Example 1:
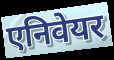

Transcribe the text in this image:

एनिवेयर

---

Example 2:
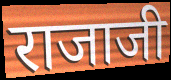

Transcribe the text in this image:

राजाजी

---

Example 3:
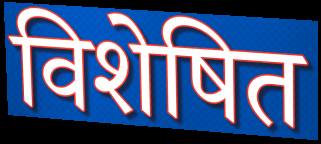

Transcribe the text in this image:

विशेषित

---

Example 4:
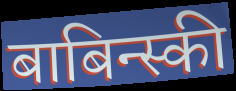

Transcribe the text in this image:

बाबिन्स्की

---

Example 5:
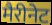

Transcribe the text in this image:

मैरीनेट